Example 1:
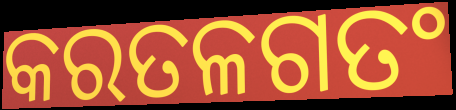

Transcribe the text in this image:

କରତଳଗତଂ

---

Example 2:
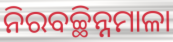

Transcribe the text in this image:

ନିରବଚ୍ଛିନ୍ନମାଳା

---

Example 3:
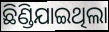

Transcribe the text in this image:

ଛିଣ୍ଡିଯାଇଥିଲା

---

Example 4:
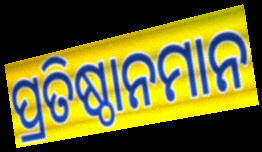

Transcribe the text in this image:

ପ୍ରତିଷ୍ଠାନମାନ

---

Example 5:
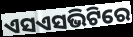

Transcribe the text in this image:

ଏସଏସଭିଟିରେ